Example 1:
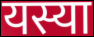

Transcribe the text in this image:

यस्या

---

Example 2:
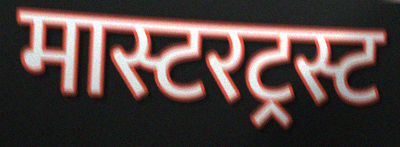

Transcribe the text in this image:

मास्टरट्रस्ट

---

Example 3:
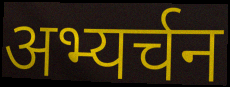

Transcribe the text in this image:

अभ्यर्चन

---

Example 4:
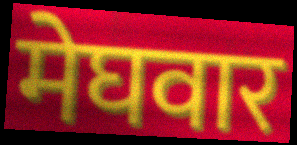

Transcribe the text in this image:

मेघवार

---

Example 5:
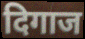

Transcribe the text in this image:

दिगाज